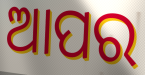
ଆପର